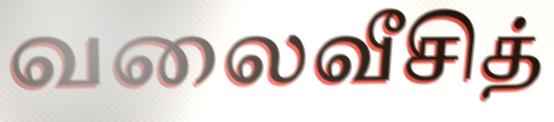
வலைவீசித்